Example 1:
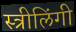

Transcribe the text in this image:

स्त्रीलिंगी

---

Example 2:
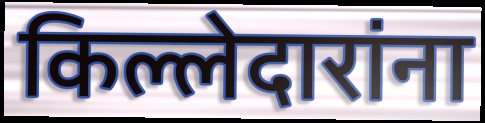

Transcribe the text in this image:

किल्लेदारांना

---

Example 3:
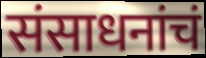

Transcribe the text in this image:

संसाधनांचं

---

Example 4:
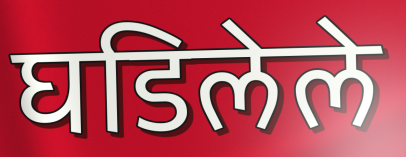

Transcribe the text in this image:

घडिलेले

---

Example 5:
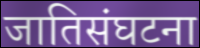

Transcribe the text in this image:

जातिसंघटना